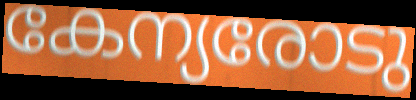
കേന്യരോടു